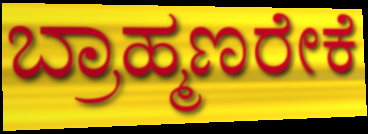
ಬ್ರಾಹ್ಮಣರೇಕೆ